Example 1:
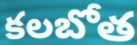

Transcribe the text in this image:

కలబోత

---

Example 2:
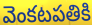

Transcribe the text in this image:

వెంకటపతికి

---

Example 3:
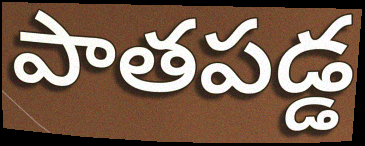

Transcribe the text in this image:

పాతపడ్డ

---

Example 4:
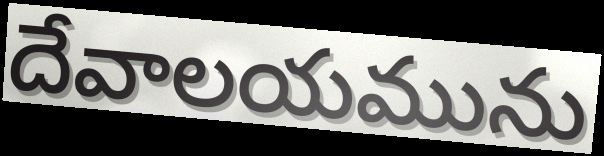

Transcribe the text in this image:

దేవాలయమును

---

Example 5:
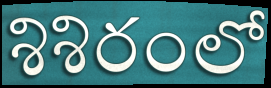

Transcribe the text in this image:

శిశిరంలో